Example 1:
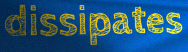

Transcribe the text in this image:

dissipates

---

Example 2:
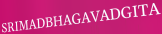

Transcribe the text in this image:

SRIMADBHAGAVADGITA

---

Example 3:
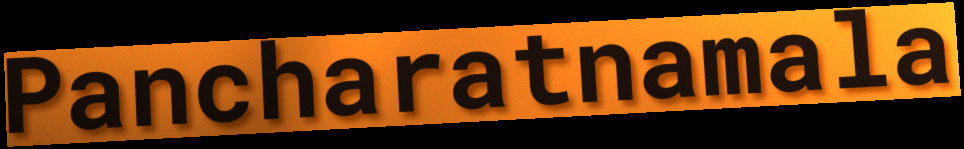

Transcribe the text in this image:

Pancharatnamala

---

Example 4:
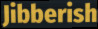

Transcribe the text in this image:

Jibberish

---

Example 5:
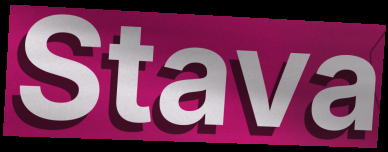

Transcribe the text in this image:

Stava